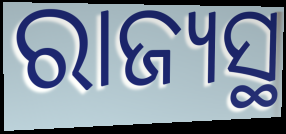
ରାଜ୍ୟସ୍ଥ